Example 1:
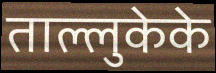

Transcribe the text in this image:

ताल्लुकेके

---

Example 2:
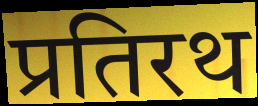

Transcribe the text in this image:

प्रतिरथ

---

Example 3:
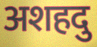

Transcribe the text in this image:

अशहदु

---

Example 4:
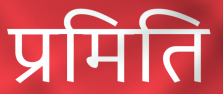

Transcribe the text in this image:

प्रमिति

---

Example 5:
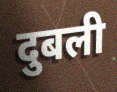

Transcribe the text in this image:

दुबली